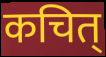
कचित्